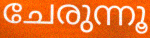
ചേരുന്നൂ